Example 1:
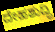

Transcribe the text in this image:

ದೇಹಶುದ್ಧಿ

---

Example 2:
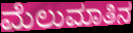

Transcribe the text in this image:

ಮೆಲುಮಾತಿನ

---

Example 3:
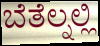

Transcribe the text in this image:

ಬೆತೆಲ್ನಲ್ಲಿ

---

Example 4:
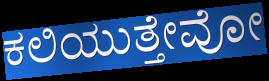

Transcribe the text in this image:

ಕಲಿಯುತ್ತೇವೋ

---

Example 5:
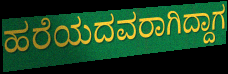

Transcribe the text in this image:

ಹರೆಯದವರಾಗಿದ್ದಾಗ